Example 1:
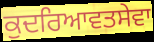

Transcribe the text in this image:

ਕੁਦਰਿਆਵਤਸੇਵਾ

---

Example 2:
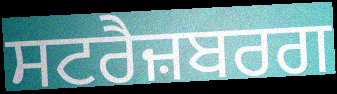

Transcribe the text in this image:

ਸਟਰੈਜ਼ਬਰਗ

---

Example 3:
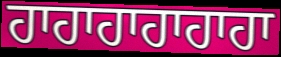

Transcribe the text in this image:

ਹਾਹਾਹਾਹਾਹਾਹਾ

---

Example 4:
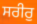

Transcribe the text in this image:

ਸਰੀਰੁ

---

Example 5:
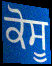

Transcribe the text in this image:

ਕੋਸੂ